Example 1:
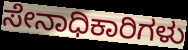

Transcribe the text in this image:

ಸೇನಾಧಿಕಾರಿಗಳು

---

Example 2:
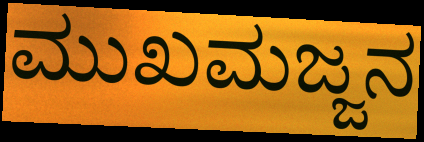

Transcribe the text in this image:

ಮುಖಮಜ್ಜನ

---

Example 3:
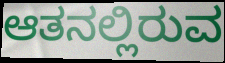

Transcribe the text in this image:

ಆತನಲ್ಲಿರುವ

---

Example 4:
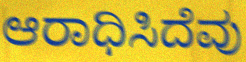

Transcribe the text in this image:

ಆರಾಧಿಸಿದೆವು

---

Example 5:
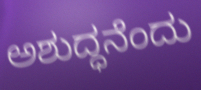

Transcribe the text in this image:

ಅಶುದ್ಧನೆಂದು